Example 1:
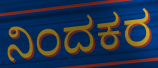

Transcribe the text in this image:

ನಿಂದಕರ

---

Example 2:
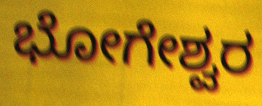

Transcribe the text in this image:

ಭೋಗೇಶ್ವರ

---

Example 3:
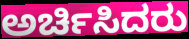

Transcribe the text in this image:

ಅರ್ಚಿಸಿದರು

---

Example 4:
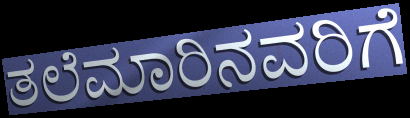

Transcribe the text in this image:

ತಲೆಮಾರಿನವರಿಗೆ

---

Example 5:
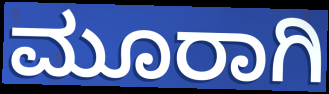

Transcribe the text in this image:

ಮೂರಾಗಿ